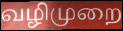
வழிமுறை